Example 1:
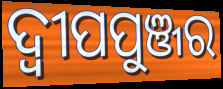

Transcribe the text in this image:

ଦ୍ଵୀପପୁଞ୍ଜର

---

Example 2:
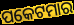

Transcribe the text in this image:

ପକେଟମାର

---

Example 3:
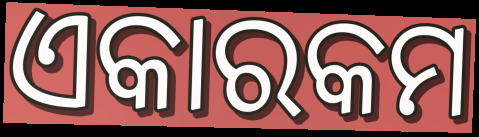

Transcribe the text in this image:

ଏକାରକମ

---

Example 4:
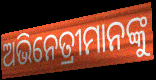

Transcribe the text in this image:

ଅଭିନେତ୍ରୀମାନଙ୍କୁ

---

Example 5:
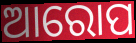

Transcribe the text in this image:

ଆରୋପ